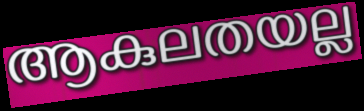
ആകുലതയല്ല